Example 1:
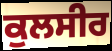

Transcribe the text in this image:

ਕੁਲਸੀਰ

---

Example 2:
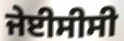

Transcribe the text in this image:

ਜੇਈਸੀਸੀ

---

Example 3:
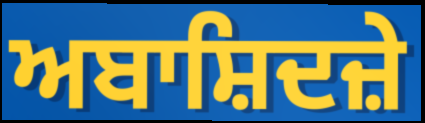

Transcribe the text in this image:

ਅਬਾਸ਼ਿਦਜ਼ੇ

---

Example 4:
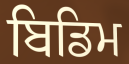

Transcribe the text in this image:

ਬਿਡਿਮ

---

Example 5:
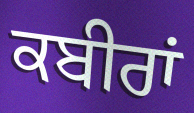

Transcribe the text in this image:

ਕਬੀਰਾਂ